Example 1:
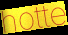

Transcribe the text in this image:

hotte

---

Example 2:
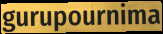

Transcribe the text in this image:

gurupournima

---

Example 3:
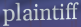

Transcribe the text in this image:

plaintiff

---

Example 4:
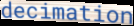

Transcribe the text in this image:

decimation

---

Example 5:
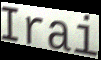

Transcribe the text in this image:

Irai